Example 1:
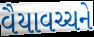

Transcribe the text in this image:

વૈયાવચ્ચને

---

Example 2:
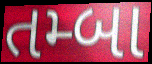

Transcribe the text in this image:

તમ્બા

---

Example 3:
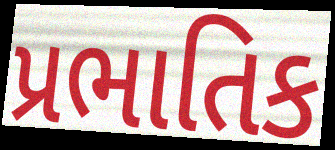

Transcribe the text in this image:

પ્રભાતિક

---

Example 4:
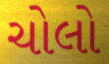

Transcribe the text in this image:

ચોલો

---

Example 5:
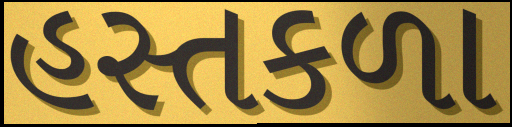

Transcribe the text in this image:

હસ્તકળા